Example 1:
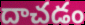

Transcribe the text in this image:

దాచడం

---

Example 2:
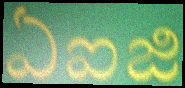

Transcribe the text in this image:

ఏఐజి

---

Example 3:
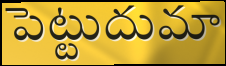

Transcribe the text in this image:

పెట్టుదుమా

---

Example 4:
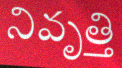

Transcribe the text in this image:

నివృత్తి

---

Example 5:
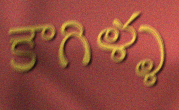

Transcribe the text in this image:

కౌగిళ్ళ